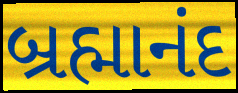
બ્રહ્માનંદ